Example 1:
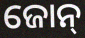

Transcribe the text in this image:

ଜୋନ୍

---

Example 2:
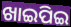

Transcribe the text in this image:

ଖାଇପିଇ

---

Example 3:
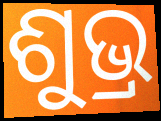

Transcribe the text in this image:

ଶୁଭ୍ର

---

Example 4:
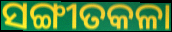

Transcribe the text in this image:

ସଙ୍ଗୀତକଳା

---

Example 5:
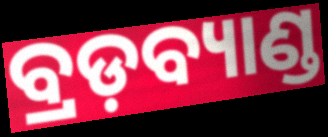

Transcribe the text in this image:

ବ୍ରଡ଼ବ୍ୟାଣ୍ଡ